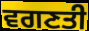
ਵਗਣਤੀ